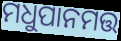
ମଧୁପାନମତ୍ତ